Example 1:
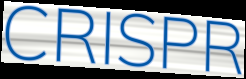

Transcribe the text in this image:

CRISPR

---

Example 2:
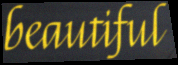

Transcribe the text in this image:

beautiful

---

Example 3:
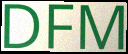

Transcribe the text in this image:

DFM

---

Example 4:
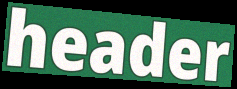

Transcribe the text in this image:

header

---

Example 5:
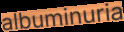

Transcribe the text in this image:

albuminuria